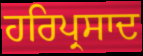
ਹਰਿਪ੍ਰਸਾਦ